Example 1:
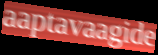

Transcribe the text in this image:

aaptavaagide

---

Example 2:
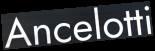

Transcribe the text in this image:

Ancelotti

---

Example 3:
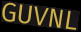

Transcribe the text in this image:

GUVNL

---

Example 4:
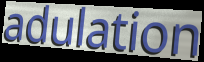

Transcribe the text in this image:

adulation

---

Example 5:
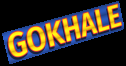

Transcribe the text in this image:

GOKHALE